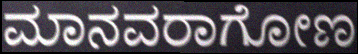
ಮಾನವರಾಗೋಣ